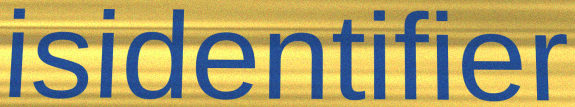
isidentifier